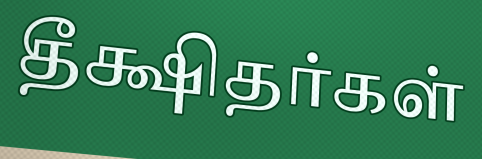
தீக்ஷிதர்கள்